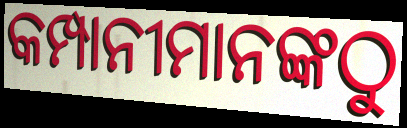
କମ୍ପାନୀମାନଙ୍କଠୁ